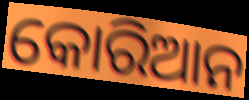
କୋରିଆନ